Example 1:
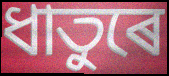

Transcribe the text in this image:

ধাতুৰে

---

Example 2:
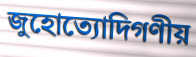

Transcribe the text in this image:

জুহোত্যোদিগণীয়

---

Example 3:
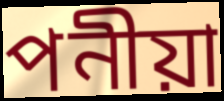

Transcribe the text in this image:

পনীয়া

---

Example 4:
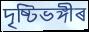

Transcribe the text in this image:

দৃষ্টিভঙ্গীৰ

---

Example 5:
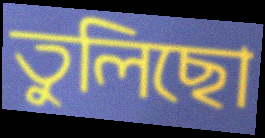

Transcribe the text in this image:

তুলিছো